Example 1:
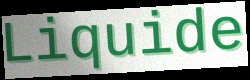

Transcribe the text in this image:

Liquide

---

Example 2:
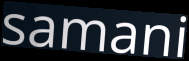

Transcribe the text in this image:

samani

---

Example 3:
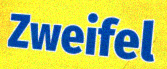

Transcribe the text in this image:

Zweifel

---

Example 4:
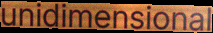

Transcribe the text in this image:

unidimensional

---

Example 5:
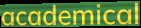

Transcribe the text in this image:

academical